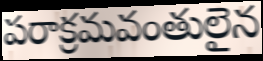
పరాక్రమవంతులైన